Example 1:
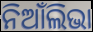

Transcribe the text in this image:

ନିଆଁଲିଭା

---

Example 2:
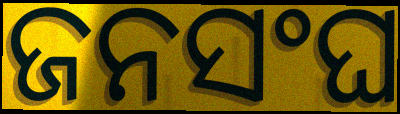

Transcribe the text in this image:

ଜନସଂଘ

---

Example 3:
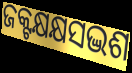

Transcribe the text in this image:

ଜକ୍ଟକ୍ଷକ୍ଷସଦ୍ଭଶ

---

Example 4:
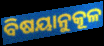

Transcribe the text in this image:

ବିଷୟାନୁକୂଳ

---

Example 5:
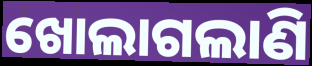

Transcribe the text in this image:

ଖୋଲାଗଲାଣି